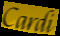
Cardi